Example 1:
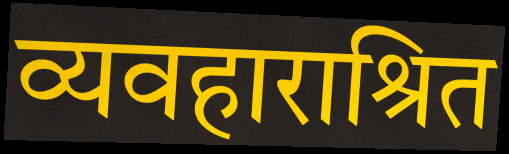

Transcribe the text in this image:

व्यवहाराश्रित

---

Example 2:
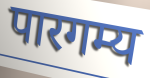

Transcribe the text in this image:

पारगम्य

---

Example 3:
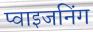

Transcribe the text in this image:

प्वाइजनिंग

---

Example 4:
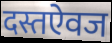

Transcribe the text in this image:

दस्तऐवज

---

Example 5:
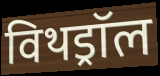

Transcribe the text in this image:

विथड्रॉल